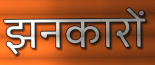
झनकारों